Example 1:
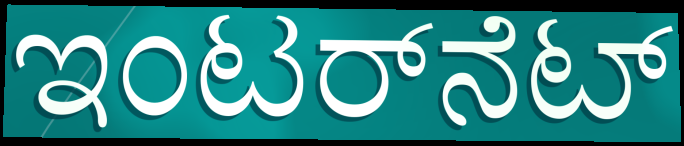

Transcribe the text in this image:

ಇಂಟರ್‌ನೆಟ್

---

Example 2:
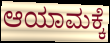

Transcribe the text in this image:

ಆಯಾಮಕ್ಕೆ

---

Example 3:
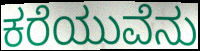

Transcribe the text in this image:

ಕರೆಯುವೆನು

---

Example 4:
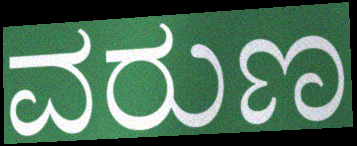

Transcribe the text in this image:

ವರುಣ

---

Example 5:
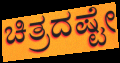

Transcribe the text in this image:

ಚಿತ್ರದಷ್ಟೇ